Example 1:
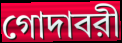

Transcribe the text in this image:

গোদাবরী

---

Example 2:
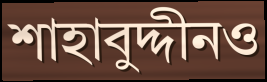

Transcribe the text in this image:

শাহাবুদ্দীনও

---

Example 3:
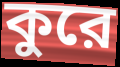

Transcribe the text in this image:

কুরে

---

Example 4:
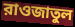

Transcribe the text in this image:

রাওজাতুল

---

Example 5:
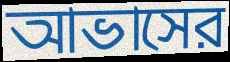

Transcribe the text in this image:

আভাসের